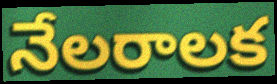
నేలరాలక